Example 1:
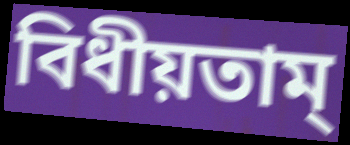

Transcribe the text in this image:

বিধীয়তাম্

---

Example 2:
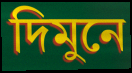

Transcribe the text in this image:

দিমুনে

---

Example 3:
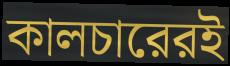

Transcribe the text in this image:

কালচারেরই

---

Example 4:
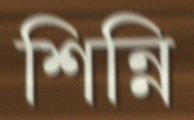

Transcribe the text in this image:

শিন্নি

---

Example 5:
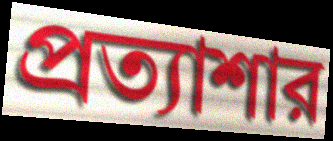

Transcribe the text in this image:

প্রত্যাশার